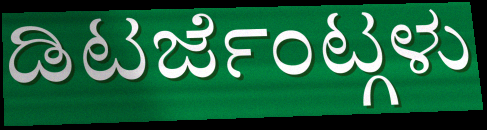
ಡಿಟರ್ಜೆಂಟ್ಗಳು